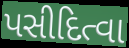
પસીદિત્વા